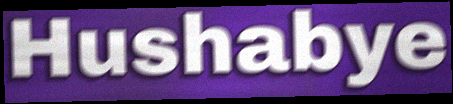
Hushabye